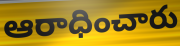
ఆరాధించారు